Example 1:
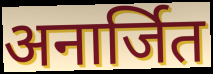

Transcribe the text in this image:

अनार्जित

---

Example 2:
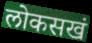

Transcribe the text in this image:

लोकसखं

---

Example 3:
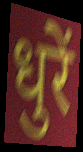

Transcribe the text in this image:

धुरें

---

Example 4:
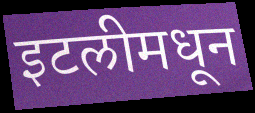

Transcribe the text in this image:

इटलीमधून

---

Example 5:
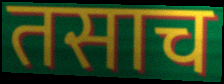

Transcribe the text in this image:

तसाच